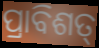
ପ୍ରାବିଶତ୍